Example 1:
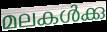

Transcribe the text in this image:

മലകൾക്കു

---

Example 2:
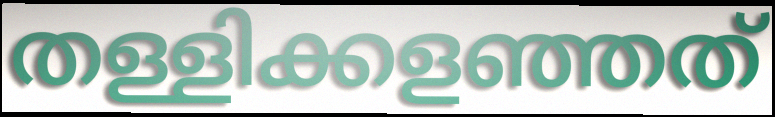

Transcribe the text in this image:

തള്ളിക്കളഞ്ഞത്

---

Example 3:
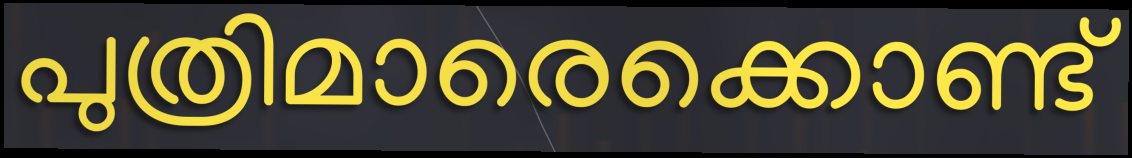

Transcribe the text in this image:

പുത്രിമാരെക്കൊണ്ട്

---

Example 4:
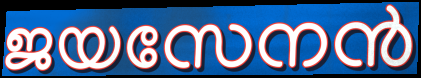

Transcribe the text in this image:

ജയസേനൻ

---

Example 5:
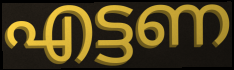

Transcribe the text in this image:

എട്ടണ